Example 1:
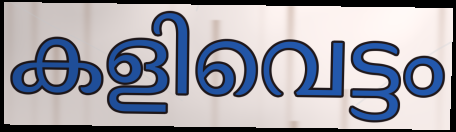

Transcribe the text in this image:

കളിവെട്ടം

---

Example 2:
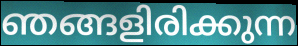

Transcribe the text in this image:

ഞങ്ങളിരിക്കുന്ന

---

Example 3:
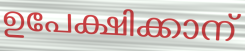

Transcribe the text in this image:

ഉപേക്ഷിക്കാന്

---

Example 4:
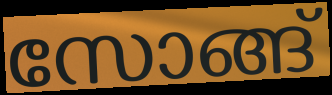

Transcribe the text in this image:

സോങ്ങ്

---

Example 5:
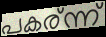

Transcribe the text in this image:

പകര്ന്ന്